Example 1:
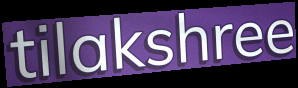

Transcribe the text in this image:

tilakshree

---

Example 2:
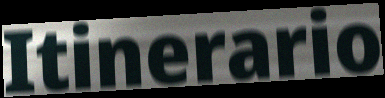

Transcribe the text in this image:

Itinerario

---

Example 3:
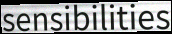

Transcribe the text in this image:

sensibilities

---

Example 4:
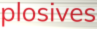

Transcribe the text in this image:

plosives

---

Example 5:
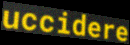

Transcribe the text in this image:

uccidere